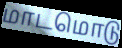
மாடமொடு